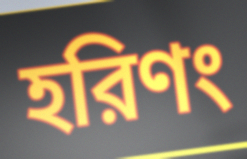
হরিণং